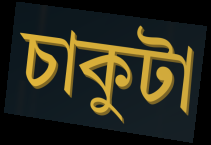
চাকুটা